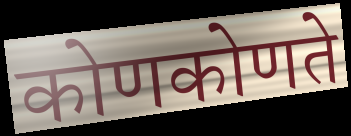
कोणकोणते